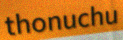
thonuchu